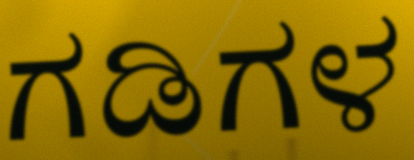
ಗಡಿಗಳ